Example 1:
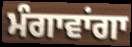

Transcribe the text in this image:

ਮੰਗਾਵਾਂਗਾ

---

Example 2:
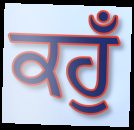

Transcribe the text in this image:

ਕਹੁਁ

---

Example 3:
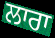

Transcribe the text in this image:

ਲਾਰਾ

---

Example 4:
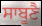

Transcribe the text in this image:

ਸਾਬੂਣੈ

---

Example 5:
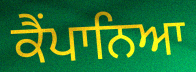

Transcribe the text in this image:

ਕੈਂਪਾਨਿਆ